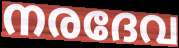
നരദേവ